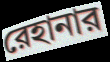
রেহানার